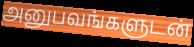
அனுபவங்களுடன்